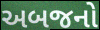
અબજનો